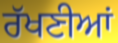
ਰੱਖਣੀਆਂ